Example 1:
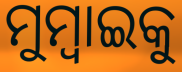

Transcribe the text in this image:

ମୁମ୍ବାଇକୁ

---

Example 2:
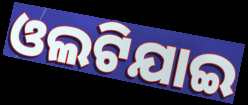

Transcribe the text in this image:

ଓଲଟିଯାଇ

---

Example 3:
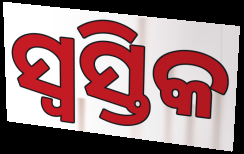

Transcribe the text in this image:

ସ୍ୱସ୍ତିକ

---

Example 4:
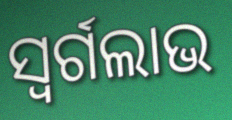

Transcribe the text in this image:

ସ୍ୱର୍ଗଲାଭ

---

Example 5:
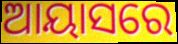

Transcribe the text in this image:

ଆୟାସରେ